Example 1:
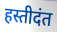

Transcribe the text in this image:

हस्तीदंत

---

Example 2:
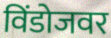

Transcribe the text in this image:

विंडोजवर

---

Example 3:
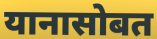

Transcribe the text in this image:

यानासोबत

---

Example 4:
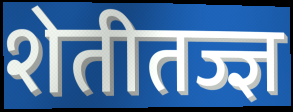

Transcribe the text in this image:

शेतीतज्ज्ञ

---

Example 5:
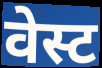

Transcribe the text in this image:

वेस्ट